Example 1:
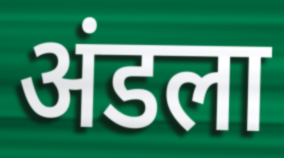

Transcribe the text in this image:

अंडला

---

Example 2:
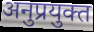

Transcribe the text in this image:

अनुप्रयुक्त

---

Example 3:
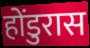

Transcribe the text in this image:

होंडुरास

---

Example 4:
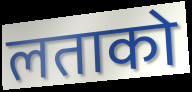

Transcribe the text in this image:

लताको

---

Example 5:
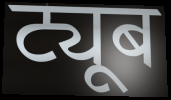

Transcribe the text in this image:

ट्यूब